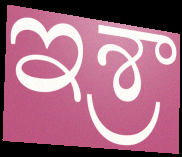
ఇశ్రా